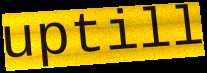
uptill